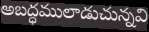
అబద్ధములాడుచున్నవి